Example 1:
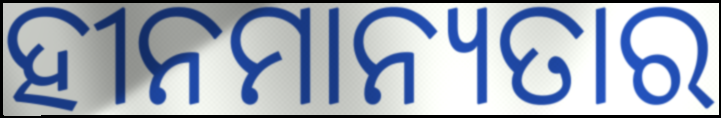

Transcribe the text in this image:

ହୀନମାନ୍ୟତାର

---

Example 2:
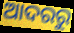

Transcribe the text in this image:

ଆଦରରୁ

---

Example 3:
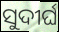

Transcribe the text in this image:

ସୁଦୀର୍ଘ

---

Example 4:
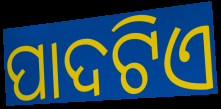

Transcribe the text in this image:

ପାଦଟିଏ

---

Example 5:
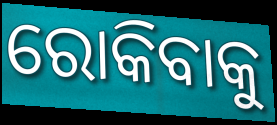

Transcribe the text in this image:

ରୋକିବାକୁ